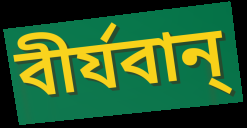
বীর্যবান্